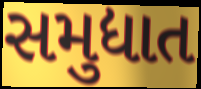
સમુદ્યાત